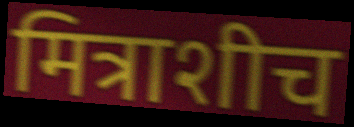
मित्राशीच